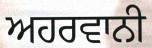
ਅਹਰਵਾਨੀ